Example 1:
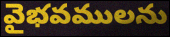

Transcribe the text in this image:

వైభవములను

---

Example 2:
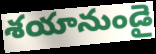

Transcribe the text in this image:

శయానుండై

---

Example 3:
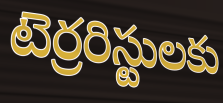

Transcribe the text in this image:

టెర్రరిస్టులకు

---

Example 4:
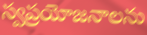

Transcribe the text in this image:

స్వప్రయోజనాలను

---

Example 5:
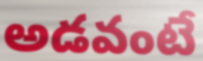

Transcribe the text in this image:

అడవంటే